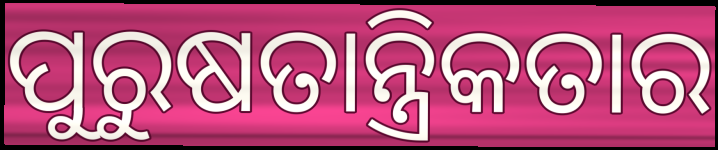
ପୁରୁଷତାନ୍ତ୍ରିକତାର